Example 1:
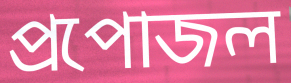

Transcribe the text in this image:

প্রপোজল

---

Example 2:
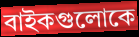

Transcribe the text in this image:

বাইকগুলোকে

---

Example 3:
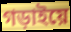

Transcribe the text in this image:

গড়াইয়ে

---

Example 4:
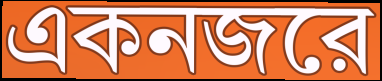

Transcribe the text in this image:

একনজরে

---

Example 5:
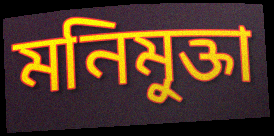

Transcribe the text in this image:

মনিমুক্তা